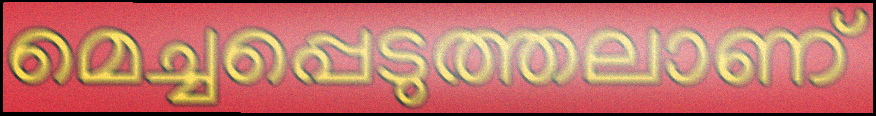
മെച്ചപ്പെടുത്തലാണ്